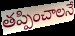
తప్పించాలనే